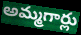
అమ్మగార్లు